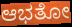
ಆಭತೋ